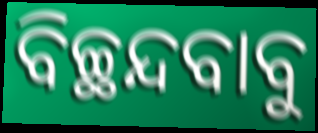
ବିଚ୍ଛନ୍ଦବାବୁ